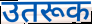
उतरूक